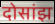
दोसांझ